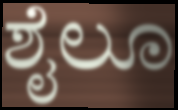
ಶೈಲೂ